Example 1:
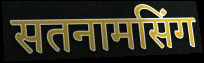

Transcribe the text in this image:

सतनामसिंग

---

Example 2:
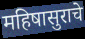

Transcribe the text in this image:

महिषासुराचे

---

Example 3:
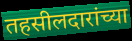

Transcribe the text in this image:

तहसीलदारांच्या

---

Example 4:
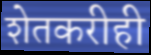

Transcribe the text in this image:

शेतकरीही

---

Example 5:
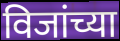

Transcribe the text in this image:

विजांच्या